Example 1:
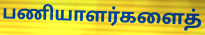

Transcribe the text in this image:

பணியாளர்களைத்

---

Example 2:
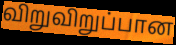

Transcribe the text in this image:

விறுவிறுப்பான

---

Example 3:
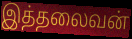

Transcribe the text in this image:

இத்தலைவன்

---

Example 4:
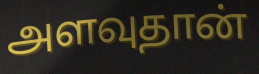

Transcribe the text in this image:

அளவுதான்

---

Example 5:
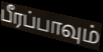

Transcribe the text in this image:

பீரப்பாவும்